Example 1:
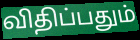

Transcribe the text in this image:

விதிப்பதும்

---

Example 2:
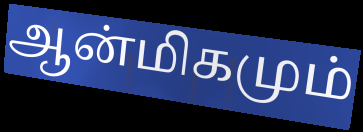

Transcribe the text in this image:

ஆன்மிகமும்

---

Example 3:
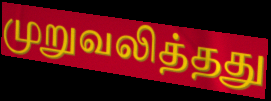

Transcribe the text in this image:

முறுவலித்தது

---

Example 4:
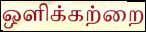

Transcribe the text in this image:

ஒளிக்கற்றை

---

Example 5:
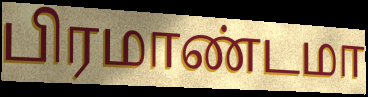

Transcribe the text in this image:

பிரமாண்டமா